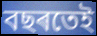
বছৰতেই